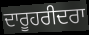
ਦਾਰੂਹਰੀਦਰਾ